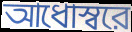
আধোস্বরে